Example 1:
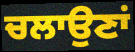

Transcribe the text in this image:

ਚਲਾਉਣਾਂ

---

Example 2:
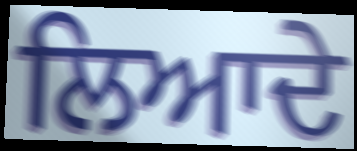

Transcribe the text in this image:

ਲਿਆਦੇ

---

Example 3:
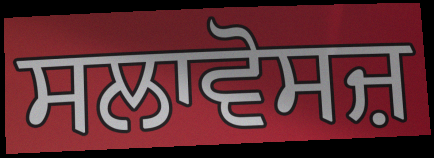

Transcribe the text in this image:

ਸਲਾਵੋਸਜ਼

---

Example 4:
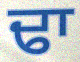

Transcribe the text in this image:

ਢਾ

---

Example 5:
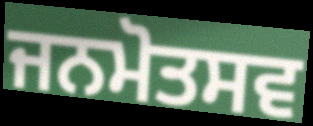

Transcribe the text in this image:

ਜਨਮੋਤਸਵ